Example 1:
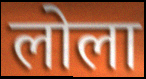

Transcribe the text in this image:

लोला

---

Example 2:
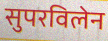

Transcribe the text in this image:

सुपरविलेन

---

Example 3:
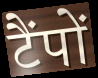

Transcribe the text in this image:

टैंपों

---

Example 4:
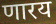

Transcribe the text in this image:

णारय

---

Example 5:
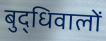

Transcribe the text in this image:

बुद्धिवालों